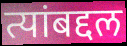
त्यांबद्दल